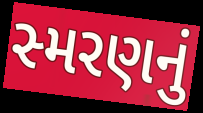
સ્મરણનું